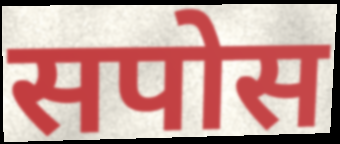
सपोस